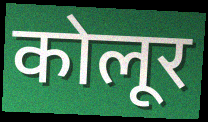
कोलूर